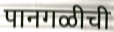
पानगळीची